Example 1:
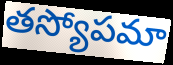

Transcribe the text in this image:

తస్యోపమా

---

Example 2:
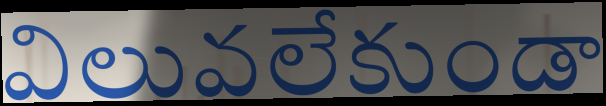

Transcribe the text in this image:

విలువలేకుండా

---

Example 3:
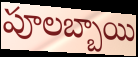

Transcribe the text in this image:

పూలబ్బాయి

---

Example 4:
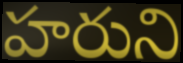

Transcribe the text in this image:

హరుని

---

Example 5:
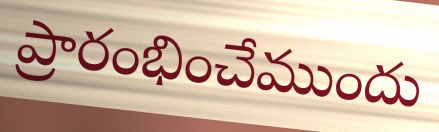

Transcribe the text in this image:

ప్రారంభించేముందు